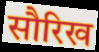
सौरिख